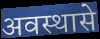
अवस्थासे